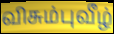
விசும்புவீழ்